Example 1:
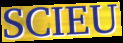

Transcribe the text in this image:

SCIEU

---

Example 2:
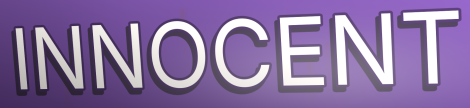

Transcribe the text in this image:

INNOCENT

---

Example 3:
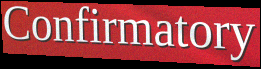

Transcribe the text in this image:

Confirmatory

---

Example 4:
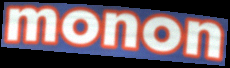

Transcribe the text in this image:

monon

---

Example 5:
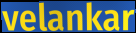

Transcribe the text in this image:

velankar